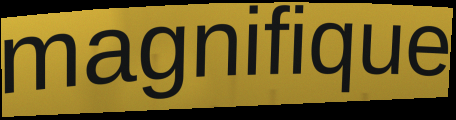
magnifique